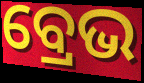
ବ୍ରେଭ